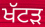
ਖੱਟੜ